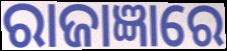
ରାଜାଜ୍ଞାରେ